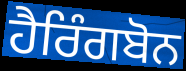
ਹੈਰਿੰਗਬੋਨ